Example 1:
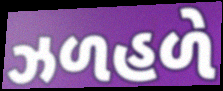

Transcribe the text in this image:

ઝળહળે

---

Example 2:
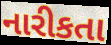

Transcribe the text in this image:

નારીકતા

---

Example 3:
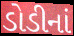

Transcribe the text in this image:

ડોડીનાં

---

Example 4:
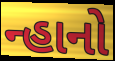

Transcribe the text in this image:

ન્હાનો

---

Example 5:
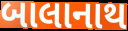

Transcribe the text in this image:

બાલાનાથ